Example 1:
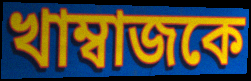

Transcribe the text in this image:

খাম্বাজকে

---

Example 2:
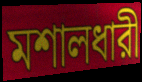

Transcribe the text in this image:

মশালধারী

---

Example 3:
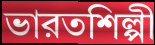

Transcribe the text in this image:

ভারতশিল্পী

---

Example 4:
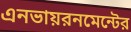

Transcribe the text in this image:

এনভায়রনমেন্টের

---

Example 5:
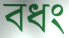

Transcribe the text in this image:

বধং